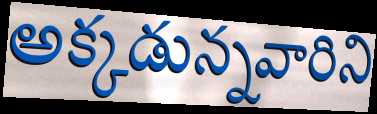
అక్కడున్నవారిని